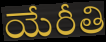
యేరీతి